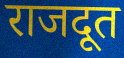
राजदूत